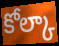
కోల్కా